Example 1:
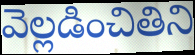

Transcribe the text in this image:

వెల్లడించితిని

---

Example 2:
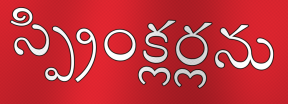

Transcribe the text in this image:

స్ప్రింక్లర్లను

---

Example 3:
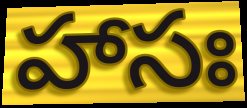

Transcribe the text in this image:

హాసః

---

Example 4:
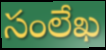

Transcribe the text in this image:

సంలేఖ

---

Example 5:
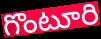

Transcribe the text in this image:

గొంటూరి